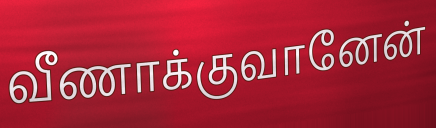
வீணாக்குவானேன்